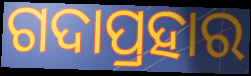
ଗଦାପ୍ରହାର